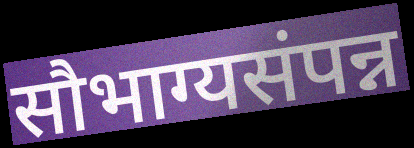
सौभाग्यसंपन्न